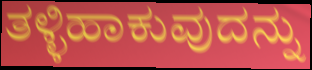
ತಳ್ಳಿಹಾಕುವುದನ್ನು